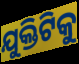
ଯୁକ୍ତିଟିକୁ